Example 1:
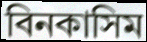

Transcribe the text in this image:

বিনকাসিম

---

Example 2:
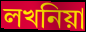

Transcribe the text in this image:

লখনিয়া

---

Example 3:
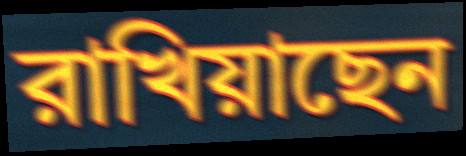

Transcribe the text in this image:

রাখিয়াছেন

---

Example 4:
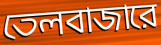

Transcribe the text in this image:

তেলবাজারে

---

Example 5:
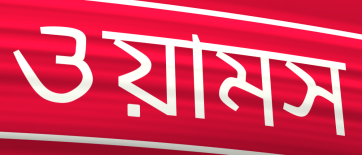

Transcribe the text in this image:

ওয়ামস